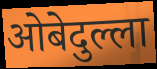
ओबेदुल्ला